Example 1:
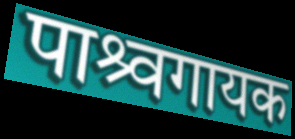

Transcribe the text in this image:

पाश्र्वगायक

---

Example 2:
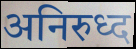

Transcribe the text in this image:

अनिरुध्द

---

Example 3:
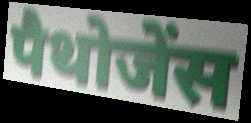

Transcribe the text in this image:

पैथोजेंस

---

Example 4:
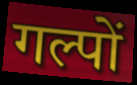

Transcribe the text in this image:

गल्पों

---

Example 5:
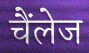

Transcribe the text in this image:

चैंलेज